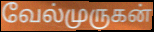
வேல்முருகன்